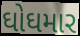
ઘોઘમાર